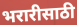
भरारीसाठी